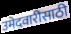
उमेदवारीसाठी